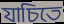
যাচিতে